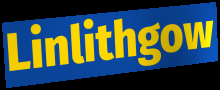
Linlithgow